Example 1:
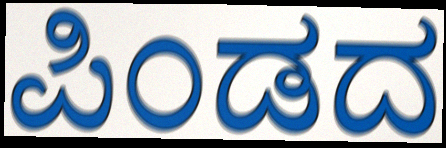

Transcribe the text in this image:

ಪಿಂಡದ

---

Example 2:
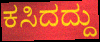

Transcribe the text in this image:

ಕಸಿದದ್ದು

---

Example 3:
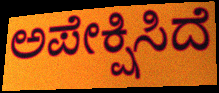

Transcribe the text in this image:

ಅಪೇಕ್ಷಿಸಿದೆ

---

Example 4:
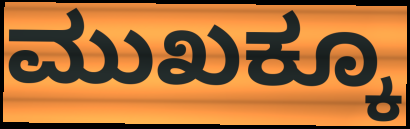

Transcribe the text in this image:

ಮುಖಕ್ಕೂ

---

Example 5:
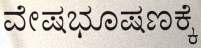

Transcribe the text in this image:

ವೇಷಭೂಷಣಕ್ಕೆ